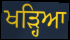
ਖੜ੍ਹਿਆ